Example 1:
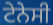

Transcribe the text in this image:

ਟੇਨੇਸੀ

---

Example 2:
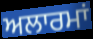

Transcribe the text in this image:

ਅਲਾਰਮਾਂ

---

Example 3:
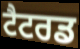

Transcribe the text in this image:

ਟੈਟਰਡ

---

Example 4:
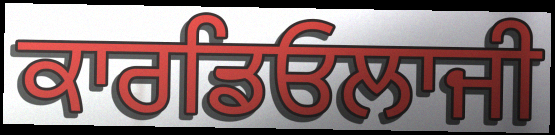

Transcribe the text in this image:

ਕਾਰਡਿਓਲਾਜੀ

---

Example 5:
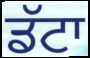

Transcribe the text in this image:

ਡੱਟਾ